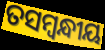
ତସମ୍ବନ୍ଧୀୟ